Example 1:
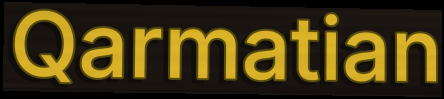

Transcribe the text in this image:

Qarmatian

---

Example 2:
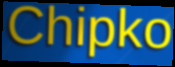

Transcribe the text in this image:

Chipko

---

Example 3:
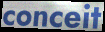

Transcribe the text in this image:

conceit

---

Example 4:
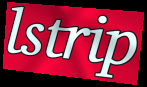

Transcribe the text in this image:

lstrip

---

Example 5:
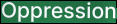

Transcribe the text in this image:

Oppression